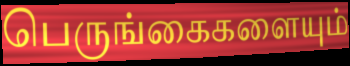
பெருங்கைகளையும்